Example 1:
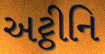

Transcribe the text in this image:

અટ્ઠીનિ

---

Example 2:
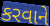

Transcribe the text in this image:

કરવાને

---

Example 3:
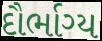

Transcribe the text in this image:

દૌર્ભાગ્ય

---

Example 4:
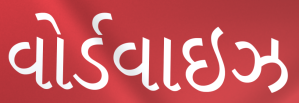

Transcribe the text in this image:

વોર્ડવાઇઝ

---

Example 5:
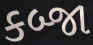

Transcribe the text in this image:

કબ્જા